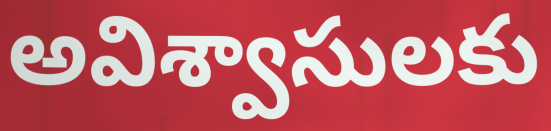
అవిశ్వాసులకు